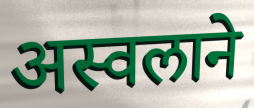
अस्वलाने